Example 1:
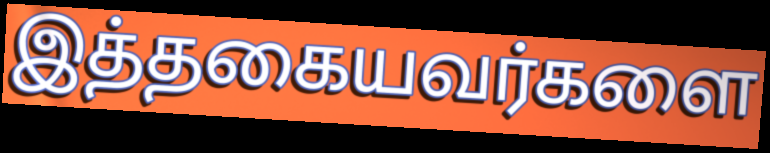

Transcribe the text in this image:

இத்தகையவர்களை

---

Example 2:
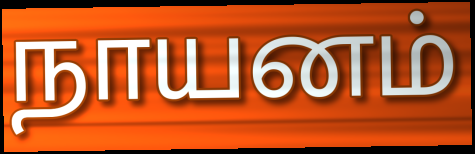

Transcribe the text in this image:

நாயனம்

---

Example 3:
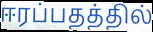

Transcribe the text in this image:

ஈரப்பதத்தில்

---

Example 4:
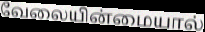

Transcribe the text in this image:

வேலையின்மையால்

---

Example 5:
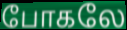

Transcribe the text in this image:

போகலே